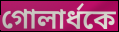
গোলার্ধকে